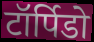
टॉर्पिडो